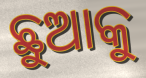
ଛୁଆକୁ